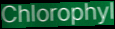
Chlorophyl